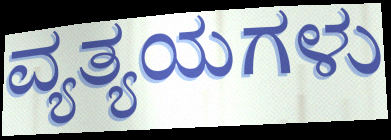
ವ್ಯತ್ಯಯಗಳು